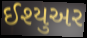
ઈશ્યુઅર